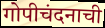
गोपीचंदनाची